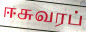
ஈசுவரப்